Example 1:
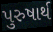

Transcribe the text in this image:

પુરુષાર્થ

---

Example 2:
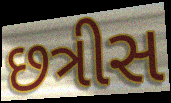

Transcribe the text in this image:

છત્રીસ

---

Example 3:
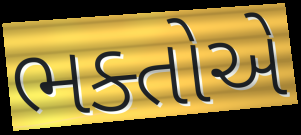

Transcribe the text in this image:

ભક્તોએ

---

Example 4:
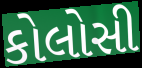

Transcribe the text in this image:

કોલોસી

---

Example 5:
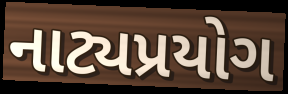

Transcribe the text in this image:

નાટ્યપ્રયોગ